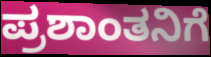
ಪ್ರಶಾಂತನಿಗೆ